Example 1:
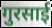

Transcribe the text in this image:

गुरसाई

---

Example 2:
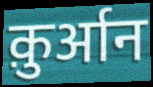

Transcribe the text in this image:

क़ुर्आन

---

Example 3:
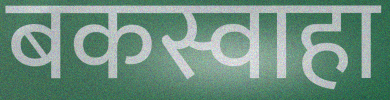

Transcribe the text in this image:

बकस्वाहा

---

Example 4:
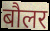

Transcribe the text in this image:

बौलर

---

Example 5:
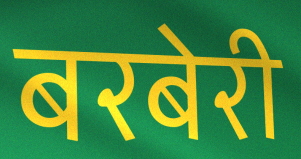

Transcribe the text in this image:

बरबेरी